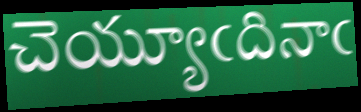
చెయ్యూఁదినాఁ